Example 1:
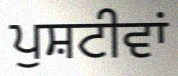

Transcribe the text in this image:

ਪੁਸ਼ਟੀਵਾਂ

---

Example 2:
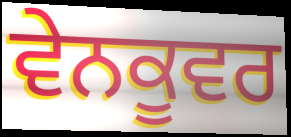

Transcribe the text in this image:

ਵੇਨਕੂਵਰ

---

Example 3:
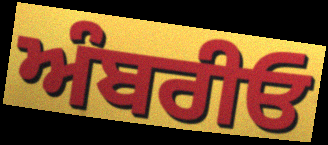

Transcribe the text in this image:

ਅੰਬਰੀਓ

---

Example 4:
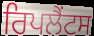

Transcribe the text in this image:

ਰਿਪਲੈਂਟਸ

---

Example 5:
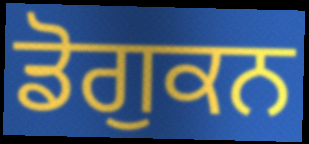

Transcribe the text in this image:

ਡੋਗੁਕਨ